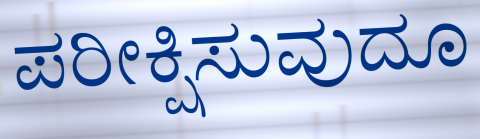
ಪರೀಕ್ಷಿಸುವುದೂ